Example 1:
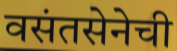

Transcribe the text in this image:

वसंतसेनेची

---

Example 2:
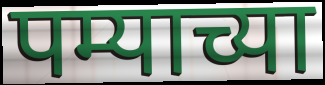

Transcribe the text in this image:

पम्याच्या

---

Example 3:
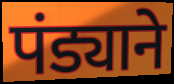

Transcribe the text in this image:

पंड्याने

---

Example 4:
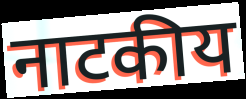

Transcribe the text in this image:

नाटकीय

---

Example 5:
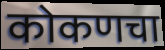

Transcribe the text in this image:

कोकणचा